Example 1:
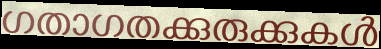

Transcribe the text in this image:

ഗതാഗതക്കുരുക്കുകൾ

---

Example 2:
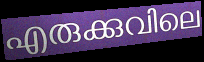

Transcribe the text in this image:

എരുക്കുവിലെ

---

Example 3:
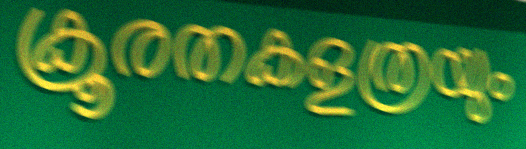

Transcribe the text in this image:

ക്രൂരതകളത്രയും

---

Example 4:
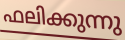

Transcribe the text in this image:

ഫലിക്കുന്നു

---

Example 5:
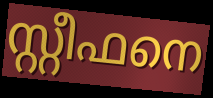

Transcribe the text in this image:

സ്റ്റീഫനെ